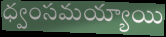
ధ్వంసమయ్యాయి